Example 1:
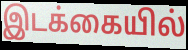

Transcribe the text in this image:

இடக்கையில்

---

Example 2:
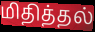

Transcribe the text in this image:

மிதித்தல்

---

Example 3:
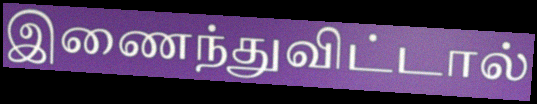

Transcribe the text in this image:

இணைந்துவிட்டால்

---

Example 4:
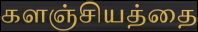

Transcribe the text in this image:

களஞ்சியத்தை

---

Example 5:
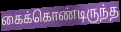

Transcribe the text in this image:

கைக்கொண்டிருந்த